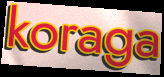
koraga